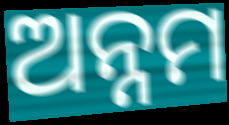
ଅନ୍ନମ